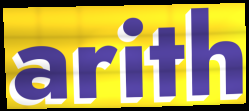
arith